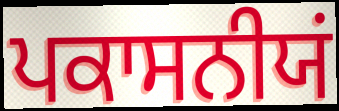
ਪਕਾਸਨੀਯਂ